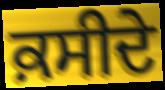
ਕ਼ਸੀਦੇ